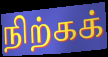
நிற்கக்